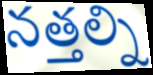
నత్తల్ని